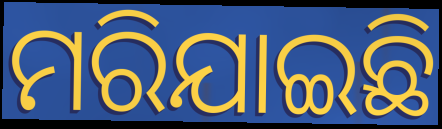
ମରିଯାଇଛି